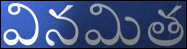
వినమిత